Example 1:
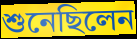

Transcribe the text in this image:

শুনেছিলেন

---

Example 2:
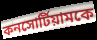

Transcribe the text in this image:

কনসোর্টিয়ামকে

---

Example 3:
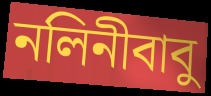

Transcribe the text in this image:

নলিনীবাবু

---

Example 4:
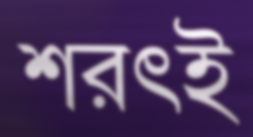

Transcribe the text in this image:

শরৎই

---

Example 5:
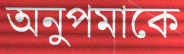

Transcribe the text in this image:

অনুপমাকে